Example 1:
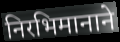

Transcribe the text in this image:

निरभिमानाने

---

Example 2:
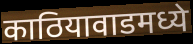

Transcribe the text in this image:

काठियावाडमध्ये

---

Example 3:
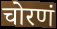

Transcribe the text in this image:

चोरणं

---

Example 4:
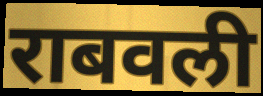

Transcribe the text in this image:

राबवली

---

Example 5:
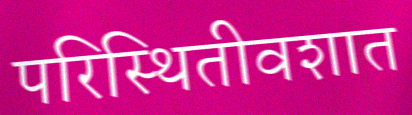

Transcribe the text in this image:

परिस्थितीवशात